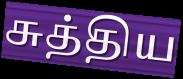
சுத்திய